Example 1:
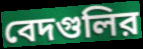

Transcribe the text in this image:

বেদগুলির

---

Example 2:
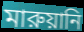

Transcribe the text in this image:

মারুয়ানি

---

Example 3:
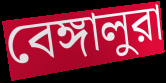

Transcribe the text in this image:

বেঙ্গালুরা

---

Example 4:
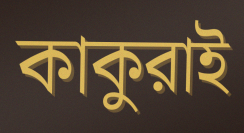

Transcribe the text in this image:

কাকুরাই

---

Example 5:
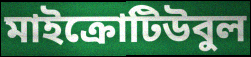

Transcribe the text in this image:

মাইক্রোটিউবুল